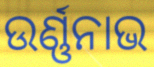
ଉର୍ଣ୍ଣନାଭ